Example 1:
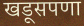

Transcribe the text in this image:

खडूसपणा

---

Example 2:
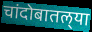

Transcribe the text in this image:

चांदोबातल्या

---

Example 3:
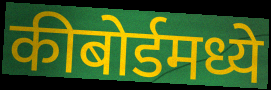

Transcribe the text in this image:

कीबोर्डमध्ये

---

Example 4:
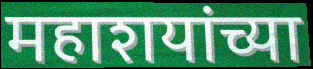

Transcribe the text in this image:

महाशयांच्या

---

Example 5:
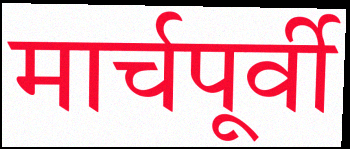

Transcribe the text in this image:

मार्चपूर्वी